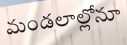
మండలాల్లోనూ